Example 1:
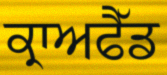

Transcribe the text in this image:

ਕ੍ਰਾਅਫੈੱਡ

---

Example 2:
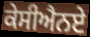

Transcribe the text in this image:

ਕੇਸੀਐਨਏ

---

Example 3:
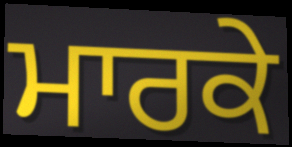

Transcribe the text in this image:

ਮਾਰਕੇ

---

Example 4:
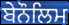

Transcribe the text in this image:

ਬੇਨੌਲਿਮ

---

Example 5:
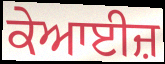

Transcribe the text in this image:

ਕੇਆਈਜ਼